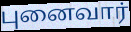
புனைவார்